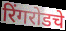
रिंगरोडचे